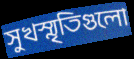
সুখস্মৃতিগুলো